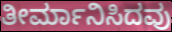
ತೀರ್ಮಾನಿಸಿದವು